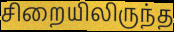
சிறையிலிருந்த